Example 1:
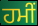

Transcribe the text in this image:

ਹਮੀਂ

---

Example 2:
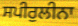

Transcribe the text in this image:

ਸਪੀਰੁਲੀਨਾ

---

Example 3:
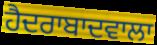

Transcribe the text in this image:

ਹੈਦਰਾਬਾਦਵਾਲਾ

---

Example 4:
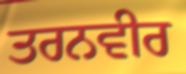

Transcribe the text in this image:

ਤਰਨਵੀਰ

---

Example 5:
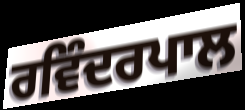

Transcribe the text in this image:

ਰਵਿੰਦਰਪਾਲ